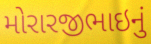
મોરારજીભાઇનું